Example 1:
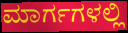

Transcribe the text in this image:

ಮಾರ್ಗಗಳಲ್ಲಿ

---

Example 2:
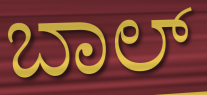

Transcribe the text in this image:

ಬಾಲ್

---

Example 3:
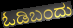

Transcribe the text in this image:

ಓಡಿಬಂದು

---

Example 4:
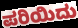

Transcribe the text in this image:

ಪರಿಯಿದು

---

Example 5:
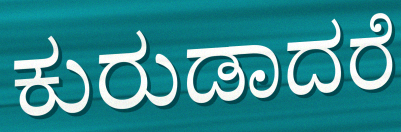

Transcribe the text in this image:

ಕುರುಡಾದರೆ